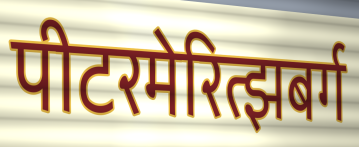
पीटरमेरित्झबर्ग